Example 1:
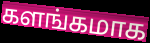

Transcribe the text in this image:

களங்கமாக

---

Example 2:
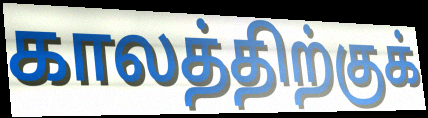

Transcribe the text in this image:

காலத்திற்குக்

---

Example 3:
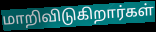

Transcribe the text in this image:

மாறிவிடுகிறார்கள்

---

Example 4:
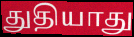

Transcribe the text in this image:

துதியாது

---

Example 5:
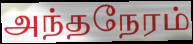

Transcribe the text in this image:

அந்தநேரம்